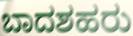
ಬಾದಶಹರು